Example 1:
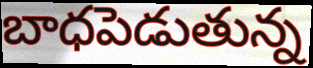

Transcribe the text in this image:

బాధపెడుతున్న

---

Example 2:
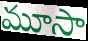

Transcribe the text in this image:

మూసా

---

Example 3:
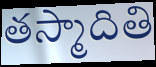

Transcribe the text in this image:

తస్మాదితి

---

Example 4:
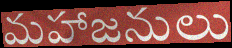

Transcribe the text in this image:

మహాజనులు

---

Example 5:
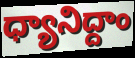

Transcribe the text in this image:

ధ్యానిద్దాం